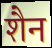
शैन